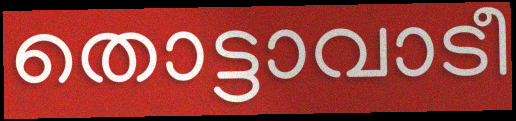
തൊട്ടാവാടീ